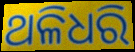
ଥଳିଧରି